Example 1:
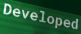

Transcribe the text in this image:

Developed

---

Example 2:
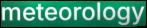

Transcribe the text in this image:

meteorology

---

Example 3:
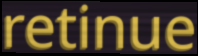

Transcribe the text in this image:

retinue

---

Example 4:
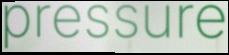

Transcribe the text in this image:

pressure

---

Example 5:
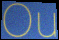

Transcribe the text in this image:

Ou